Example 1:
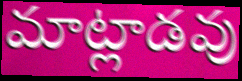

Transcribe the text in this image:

మాట్లాడవు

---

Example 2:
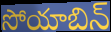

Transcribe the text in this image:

సోయాబిన్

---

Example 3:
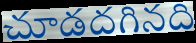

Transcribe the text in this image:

చూడదగినది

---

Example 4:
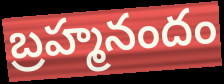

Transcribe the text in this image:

బ్రహ్మనందం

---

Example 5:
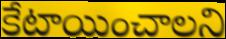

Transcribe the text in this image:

కేటాయించాలని